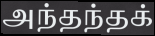
அந்தந்தக்